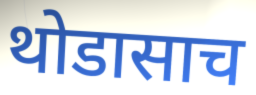
थोडासाच